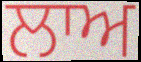
ਲਾਅ